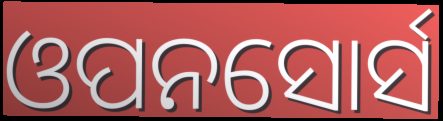
ଓପନସୋର୍ସ